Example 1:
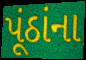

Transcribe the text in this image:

પૂંઠાંના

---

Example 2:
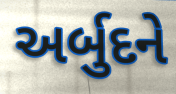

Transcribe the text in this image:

અર્બુદને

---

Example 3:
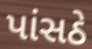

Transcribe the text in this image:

પાંસઠે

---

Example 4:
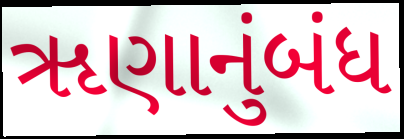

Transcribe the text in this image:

ૠણાનુંબંધ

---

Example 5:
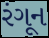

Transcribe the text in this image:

રંગૂન